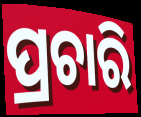
ପ୍ରଚାରି